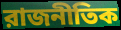
রাজনীতিক